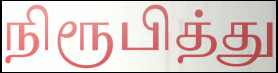
நிரூபித்து